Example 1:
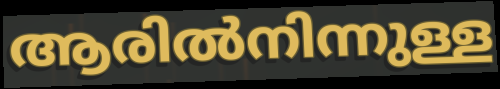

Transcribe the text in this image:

ആരിൽനിന്നുള്ള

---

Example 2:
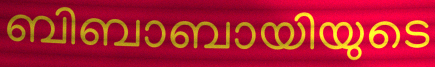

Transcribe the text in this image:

ബിബാബായിയുടെ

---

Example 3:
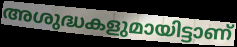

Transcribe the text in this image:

അശുദ്ധകളുമായിട്ടാണ്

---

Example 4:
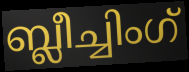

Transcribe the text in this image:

ബ്ലീച്ചിംഗ്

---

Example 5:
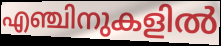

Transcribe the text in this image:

എഞ്ചിനുകളിൽ